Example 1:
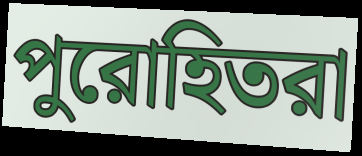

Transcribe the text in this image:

পুরোহিতরা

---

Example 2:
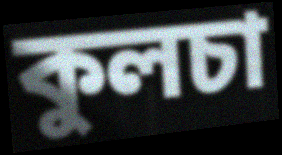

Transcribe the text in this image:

কুলচা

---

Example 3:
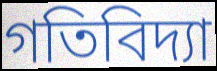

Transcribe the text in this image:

গতিবিদ্যা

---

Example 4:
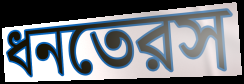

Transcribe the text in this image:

ধনতেরস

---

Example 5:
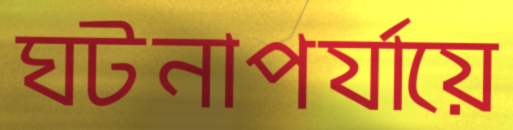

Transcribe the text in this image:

ঘটনাপর্যায়ে